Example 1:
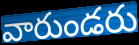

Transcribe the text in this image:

వారుండరు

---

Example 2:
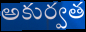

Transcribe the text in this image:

అకుర్వత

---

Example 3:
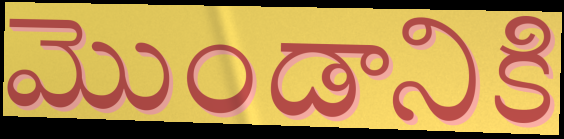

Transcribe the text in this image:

మొండానికి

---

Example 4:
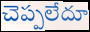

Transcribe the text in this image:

చెప్పలేదూ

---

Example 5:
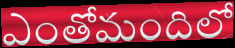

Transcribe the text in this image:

ఎంతోమందిలో